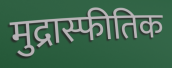
मुद्रास्फीतिक